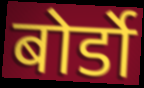
बोर्डो